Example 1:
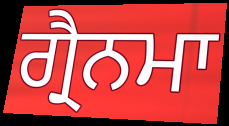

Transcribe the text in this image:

ਗ੍ਰੈਨਮਾ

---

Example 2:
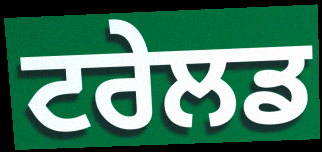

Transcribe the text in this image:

ਟਰੇਲਡ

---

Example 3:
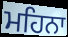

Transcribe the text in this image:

ਮਹਿਨਾ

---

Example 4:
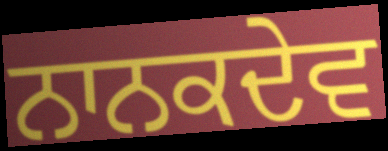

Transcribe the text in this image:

ਨਾਨਕਦੇਵ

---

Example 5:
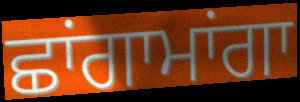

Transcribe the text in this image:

ਛਾਂਗਾਮਾਂਗਾ